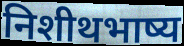
निशीथभाष्य